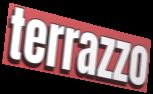
terrazzo